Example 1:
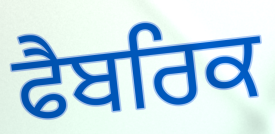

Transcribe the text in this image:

ਫੈਬਰਿਕ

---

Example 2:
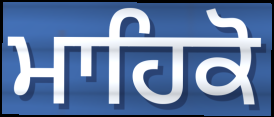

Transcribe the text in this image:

ਮਾਹਿਕੋ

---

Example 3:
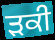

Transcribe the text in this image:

ੜਕੀ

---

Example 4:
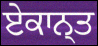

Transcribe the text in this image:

ਏਕਾਨ੍ਤ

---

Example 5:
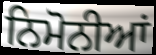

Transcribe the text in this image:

ਨਿਮੋਨੀਆਂ